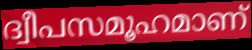
ദ്വീപസമൂഹമാണ്